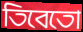
তিবেতো